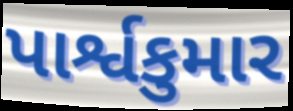
પાર્શ્વકુમાર